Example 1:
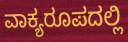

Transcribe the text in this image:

ವಾಕ್ಯರೂಪದಲ್ಲಿ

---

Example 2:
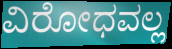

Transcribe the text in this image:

ವಿರೋಧವಲ್ಲ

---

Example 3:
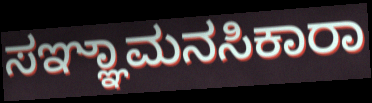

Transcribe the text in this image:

ಸಞ್ಞಾಮನಸಿಕಾರಾ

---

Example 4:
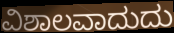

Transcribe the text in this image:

ವಿಶಾಲವಾದುದು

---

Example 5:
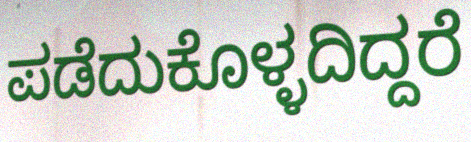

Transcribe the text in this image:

ಪಡೆದುಕೊಳ್ಳದಿದ್ದರೆ